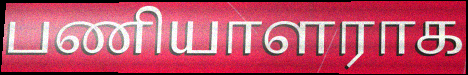
பணியாளராக